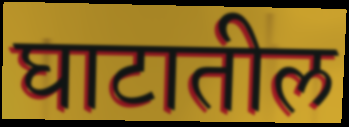
घाटातील